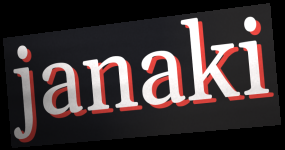
janaki